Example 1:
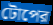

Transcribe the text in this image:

টোপের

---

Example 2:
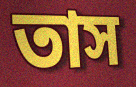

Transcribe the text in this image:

তাস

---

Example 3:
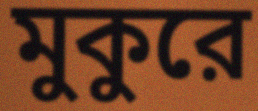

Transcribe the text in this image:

মুকুরে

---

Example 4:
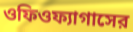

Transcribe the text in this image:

ওফিওফ্যাগাসের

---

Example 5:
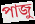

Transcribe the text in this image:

পাজু